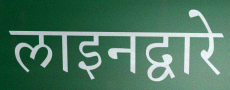
लाइनद्वारे